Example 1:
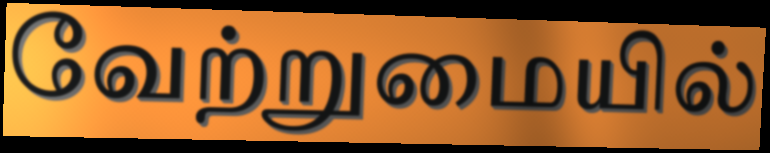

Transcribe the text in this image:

வேற்றுமையில்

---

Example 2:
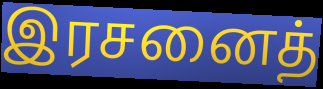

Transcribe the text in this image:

இரசனைத்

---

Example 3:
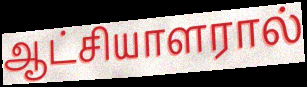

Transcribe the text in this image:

ஆட்சியாளரால்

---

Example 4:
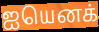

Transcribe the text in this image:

ஐயெனக்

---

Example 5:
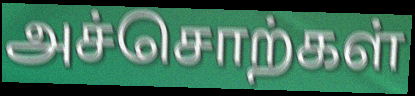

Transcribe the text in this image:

அச்சொற்கள்